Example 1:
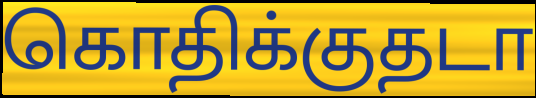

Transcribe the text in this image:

கொதிக்குதடா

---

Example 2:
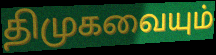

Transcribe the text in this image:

திமுகவையும்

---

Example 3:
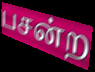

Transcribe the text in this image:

பசன்ற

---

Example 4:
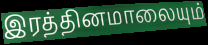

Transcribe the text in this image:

இரத்தினமாலையும்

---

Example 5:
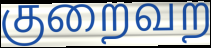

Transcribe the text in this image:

குறைவற